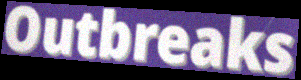
Outbreaks